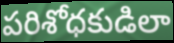
పరిశోధకుడిలా